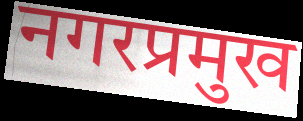
नगरप्रमुख